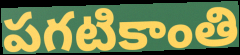
పగటికాంతి